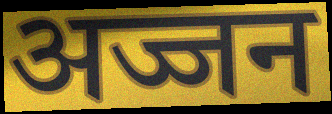
अज्जन